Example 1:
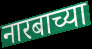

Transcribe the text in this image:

नारबाच्या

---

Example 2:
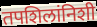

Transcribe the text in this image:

तपशिलांनिशी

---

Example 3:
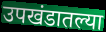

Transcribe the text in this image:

उपखंडातल्या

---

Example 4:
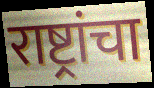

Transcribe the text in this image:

राष्ट्रांचा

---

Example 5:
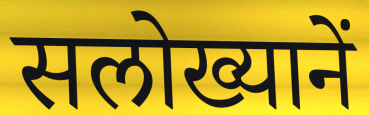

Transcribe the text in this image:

सलोख्यानें